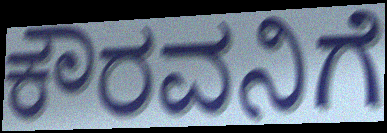
ಕೌರವನಿಗೆ